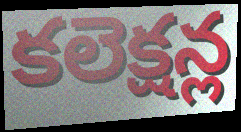
కలెక్షన్ల